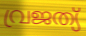
വ്രജത്യ്